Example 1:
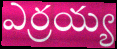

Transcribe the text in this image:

ఎర్రయ్య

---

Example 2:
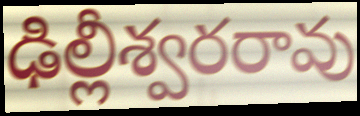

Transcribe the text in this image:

ఢిల్లీశ్వరరావు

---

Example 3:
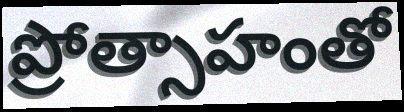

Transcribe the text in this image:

ప్రోత్సాహంతో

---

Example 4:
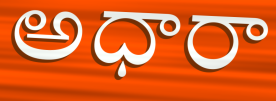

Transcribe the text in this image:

అధారా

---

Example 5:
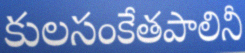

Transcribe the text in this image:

కులసంకేతపాలినీ